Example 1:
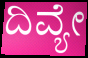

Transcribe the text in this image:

ದಿವ್ಯೇ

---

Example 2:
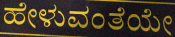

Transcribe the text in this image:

ಹೇಳುವಂತೆಯೇ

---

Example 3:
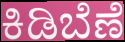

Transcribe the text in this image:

ಕಿಡಿಬೆಣೆ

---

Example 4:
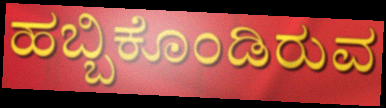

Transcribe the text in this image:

ಹಬ್ಬಿಕೊಂಡಿರುವ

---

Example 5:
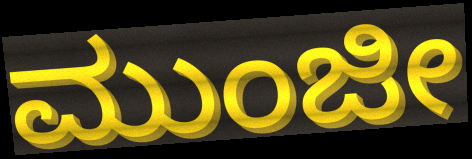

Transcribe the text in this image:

ಮುಂಜೀ